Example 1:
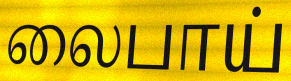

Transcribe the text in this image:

லைபாய்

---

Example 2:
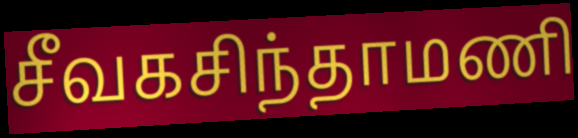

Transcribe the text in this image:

சீவகசிந்தாமணி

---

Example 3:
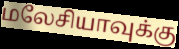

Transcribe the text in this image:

மலேசியாவுக்கு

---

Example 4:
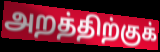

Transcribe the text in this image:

அறத்திற்குக்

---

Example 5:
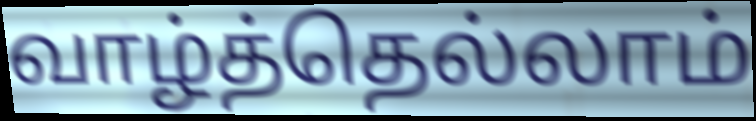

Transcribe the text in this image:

வாழ்த்தெல்லாம்